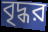
বৃদ্ধর